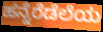
ಹನ್ನೆರೆಡೆಲೆಯ